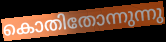
കൊതിതോന്നുന്നു